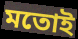
মতোই